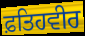
ਫ਼ਤਿਹਵੀਰ